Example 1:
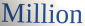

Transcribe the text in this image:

Million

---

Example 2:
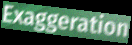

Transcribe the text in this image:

Exaggeration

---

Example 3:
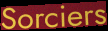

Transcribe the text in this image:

Sorciers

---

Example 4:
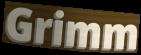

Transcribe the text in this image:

Grimm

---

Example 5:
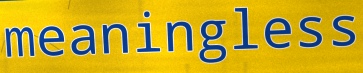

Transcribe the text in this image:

meaningless